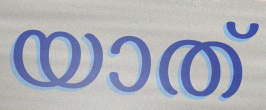
യാത്